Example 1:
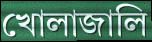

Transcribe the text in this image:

খোলাজালি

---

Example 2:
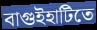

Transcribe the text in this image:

বাগুইহাটিতে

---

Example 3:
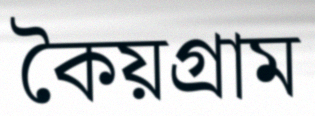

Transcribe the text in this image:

কৈয়গ্রাম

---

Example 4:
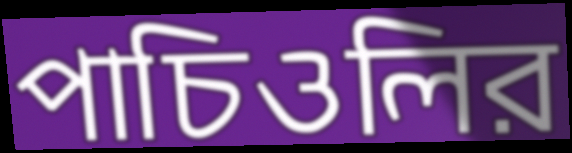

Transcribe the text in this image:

পাচিওলির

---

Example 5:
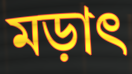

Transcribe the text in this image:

মড়াৎ